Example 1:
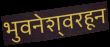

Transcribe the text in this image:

भुवनेश्वरहून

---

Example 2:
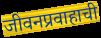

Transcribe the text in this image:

जीवनप्रवाहाची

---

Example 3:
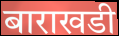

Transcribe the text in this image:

बाराखडी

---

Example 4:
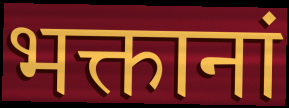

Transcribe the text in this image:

भक्तानां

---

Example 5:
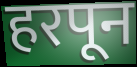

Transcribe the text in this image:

हरपून